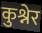
कुश्नेर